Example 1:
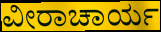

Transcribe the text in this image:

ವೀರಾಚಾರ್ಯ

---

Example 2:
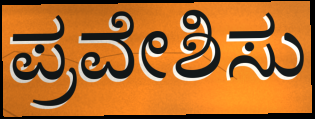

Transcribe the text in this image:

ಪ್ರವೇಶಿಸು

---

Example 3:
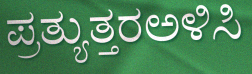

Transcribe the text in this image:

ಪ್ರತ್ಯುತ್ತರಅಳಿಸಿ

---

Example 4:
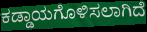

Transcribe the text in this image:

ಕಡ್ಡಾಯಗೊಳಿಸಲಾಗಿದೆ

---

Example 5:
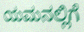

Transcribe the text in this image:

ಯಮನಲ್ಲಿಗೆ